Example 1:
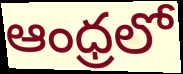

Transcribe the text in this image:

ఆంధ్రలో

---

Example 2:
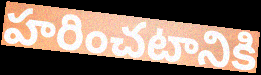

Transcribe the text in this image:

హరించటానికి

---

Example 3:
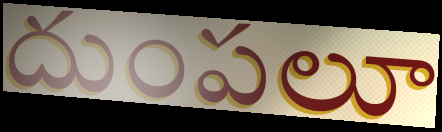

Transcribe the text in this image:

దుంపలూ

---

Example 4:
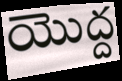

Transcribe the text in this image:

యొద్ద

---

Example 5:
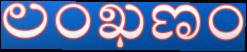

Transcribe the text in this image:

లంఖణం